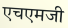
एचएमजी